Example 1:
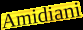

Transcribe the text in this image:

Amidiani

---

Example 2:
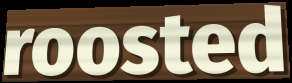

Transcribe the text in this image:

roosted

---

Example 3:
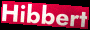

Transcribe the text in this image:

Hibbert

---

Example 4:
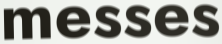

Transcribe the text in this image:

messes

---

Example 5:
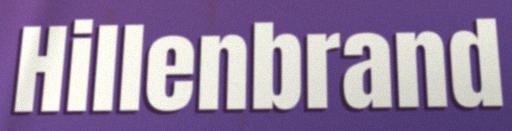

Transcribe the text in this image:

Hillenbrand